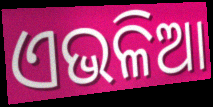
ଏଭଳିଆ